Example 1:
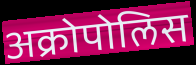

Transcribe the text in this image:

अक्रोपोलिस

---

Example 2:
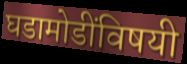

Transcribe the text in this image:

घडामोडींविषयी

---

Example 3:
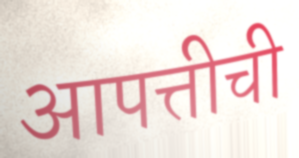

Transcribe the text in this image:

आपत्तीची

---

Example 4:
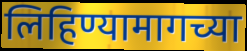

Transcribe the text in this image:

लिहिण्यामागच्या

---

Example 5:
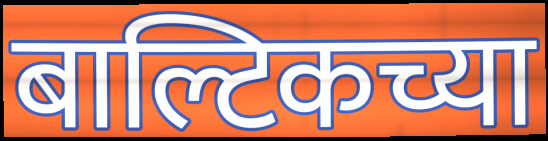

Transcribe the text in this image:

बाल्टिकच्या